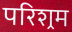
परिश्रम